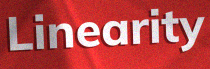
Linearity